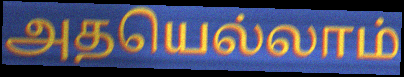
அதயெல்லாம்